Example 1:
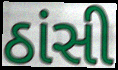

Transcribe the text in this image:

ઠાંસી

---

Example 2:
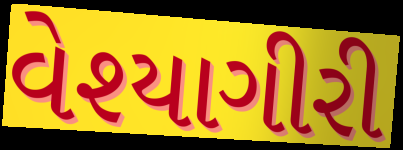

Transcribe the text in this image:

વેશ્યાગીરી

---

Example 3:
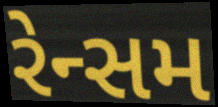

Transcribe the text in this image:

રેન્સમ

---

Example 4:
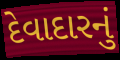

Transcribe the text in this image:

દેવાદારનું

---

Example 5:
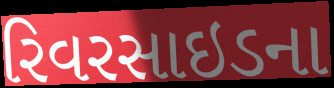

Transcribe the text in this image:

રિવરસાઇડના